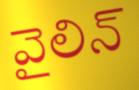
వైలిన్